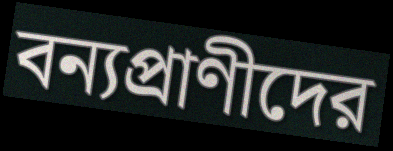
বন্যপ্রাণীদের